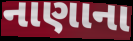
નાણાના